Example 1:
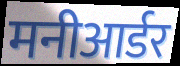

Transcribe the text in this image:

मनीआर्डर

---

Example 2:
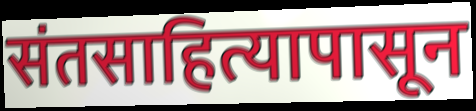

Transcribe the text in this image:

संतसाहित्यापासून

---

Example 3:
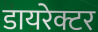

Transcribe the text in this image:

डायरेक्टर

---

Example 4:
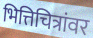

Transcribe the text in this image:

भित्तिचित्रांवर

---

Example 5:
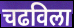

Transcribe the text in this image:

चढविला